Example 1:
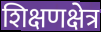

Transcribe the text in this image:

शिक्षणक्षेत्र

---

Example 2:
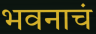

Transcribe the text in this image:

भवनाचं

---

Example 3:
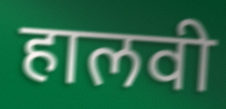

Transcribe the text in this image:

हालवी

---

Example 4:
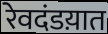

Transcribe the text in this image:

रेवदंडय़ात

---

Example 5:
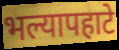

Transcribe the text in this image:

भल्यापहाटे